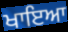
ਖਾਇਆ